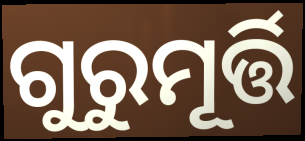
ଗୁରୁମୂର୍ତ୍ତି